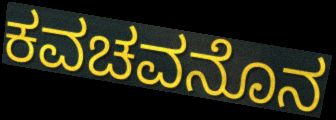
ಕವಚವನೊನ